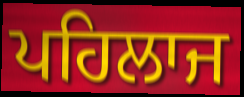
ਪਹਿਲਾਜ